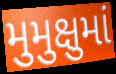
મુમુક્ષુમાં